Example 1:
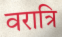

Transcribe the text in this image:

वरात्रि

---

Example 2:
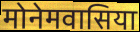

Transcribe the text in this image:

मोनेमवासिया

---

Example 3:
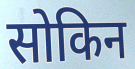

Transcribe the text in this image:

सोकिन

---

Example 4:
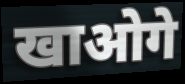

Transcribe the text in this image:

खाओगे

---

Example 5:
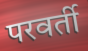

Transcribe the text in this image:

परवर्ती